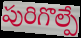
పురిగొల్పే